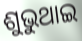
ଶୁଭୁଥାଇ